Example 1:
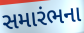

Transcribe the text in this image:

સમારંભના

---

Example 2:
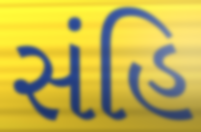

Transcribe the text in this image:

સંહિ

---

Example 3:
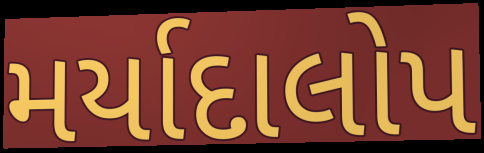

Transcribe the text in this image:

મર્યાદાલોપ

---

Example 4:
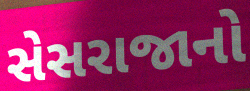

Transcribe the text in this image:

સેસરાજાનો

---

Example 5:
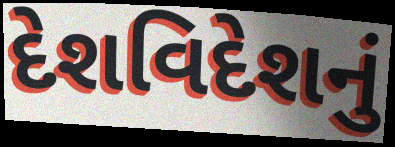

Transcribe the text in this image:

દેશવિદેશનું